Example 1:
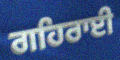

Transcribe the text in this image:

ਗਹਿਰਾਈ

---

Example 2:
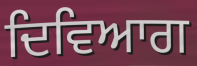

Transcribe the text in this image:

ਦਿਵਿਆਗ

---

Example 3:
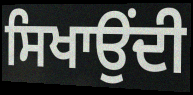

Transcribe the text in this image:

ਸਿਖਾਉਂਦੀ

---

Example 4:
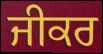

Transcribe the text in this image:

ਜੀਕਰ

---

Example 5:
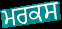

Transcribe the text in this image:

ਮਰਕਸ